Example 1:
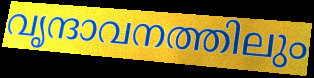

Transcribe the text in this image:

വൃന്ദാവനത്തിലും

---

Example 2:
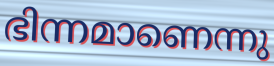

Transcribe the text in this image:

ഭിന്നമാണെന്നു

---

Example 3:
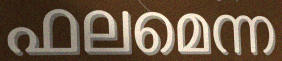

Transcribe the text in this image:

ഫലമെന്ന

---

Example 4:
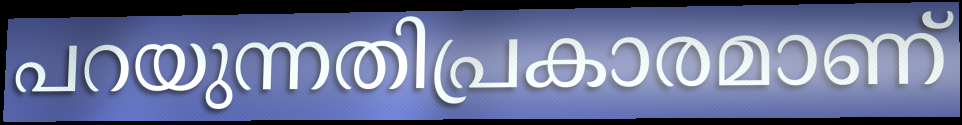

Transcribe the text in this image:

പറയുന്നതിപ്രകാരമാണ്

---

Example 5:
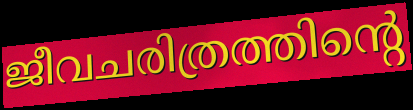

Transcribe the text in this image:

ജീവചരിത്രത്തിന്റെ